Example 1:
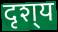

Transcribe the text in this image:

दृश्य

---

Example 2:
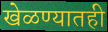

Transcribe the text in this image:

खेळण्यातही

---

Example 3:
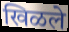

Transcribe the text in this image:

खिळले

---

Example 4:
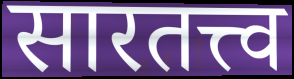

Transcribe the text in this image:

सारतत्त्व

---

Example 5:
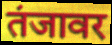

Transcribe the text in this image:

तंजावर